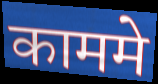
काममे